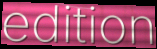
edition